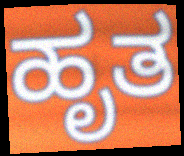
ಹೃತ